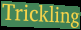
Trickling